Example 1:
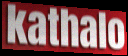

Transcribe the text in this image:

kathalo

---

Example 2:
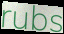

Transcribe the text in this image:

rubs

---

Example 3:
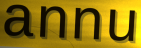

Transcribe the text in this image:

annu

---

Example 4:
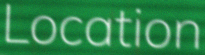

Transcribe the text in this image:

Location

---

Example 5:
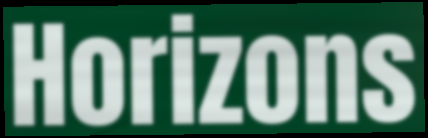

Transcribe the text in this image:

Horizons